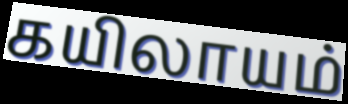
கயிலாயம்